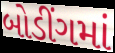
બોડીંગમાં